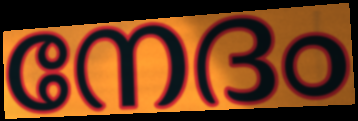
നേദം